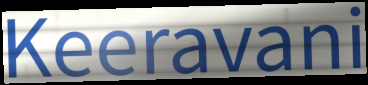
Keeravani